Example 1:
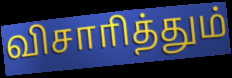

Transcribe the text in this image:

விசாரித்தும்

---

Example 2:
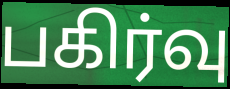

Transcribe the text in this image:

பகிர்வு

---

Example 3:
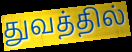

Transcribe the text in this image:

துவத்தில்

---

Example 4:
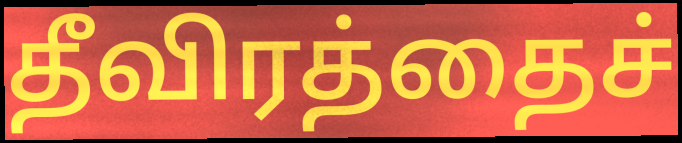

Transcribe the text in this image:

தீவிரத்தைச்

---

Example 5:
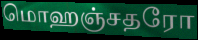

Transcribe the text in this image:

மொஹஞ்சதரோ